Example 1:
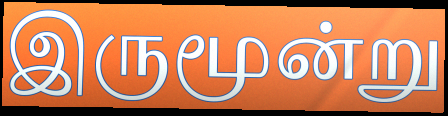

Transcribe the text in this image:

இருமூன்று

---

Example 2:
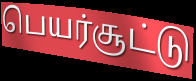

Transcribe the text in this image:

பெயர்சூட்டு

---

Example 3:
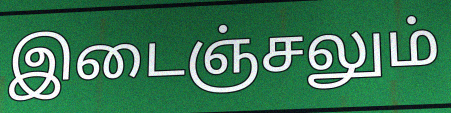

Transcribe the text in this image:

இடைஞ்சலும்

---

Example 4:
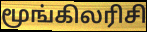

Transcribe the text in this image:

மூங்கிலரிசி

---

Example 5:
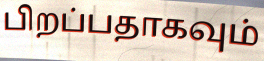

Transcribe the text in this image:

பிறப்பதாகவும்